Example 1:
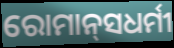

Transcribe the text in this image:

ରୋମାନ୍‍ସଧର୍ମୀ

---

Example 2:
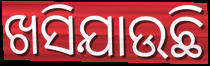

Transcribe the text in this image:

ଖସିଯାଉଛି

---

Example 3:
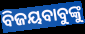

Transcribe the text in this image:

ବିଜୟବାବୁଙ୍କୁ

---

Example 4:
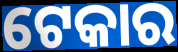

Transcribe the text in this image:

ଟେକାର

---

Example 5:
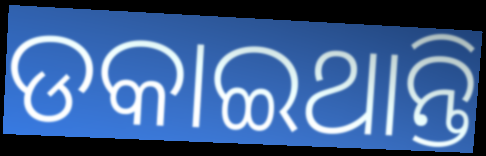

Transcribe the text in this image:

ଡକାଇଥାନ୍ତି